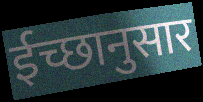
ईच्छानुसार